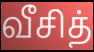
வீசித்